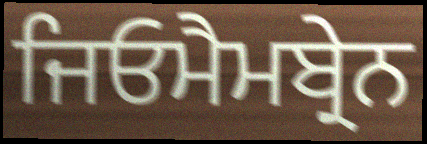
ਜਿਓਮੈਮਬ੍ਰੇਨ